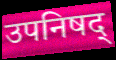
उपनिषद्